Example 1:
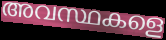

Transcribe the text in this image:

അവസ്ഥകളെ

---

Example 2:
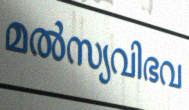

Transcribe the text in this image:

മൽസ്യവിഭവ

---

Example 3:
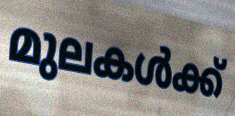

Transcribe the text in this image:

മുലകൾക്ക്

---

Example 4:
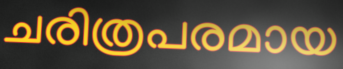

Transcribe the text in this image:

ചരിത്രപരമായ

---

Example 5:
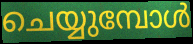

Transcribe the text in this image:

ചെയ്യുമ്പോൾ